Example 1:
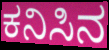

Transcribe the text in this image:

ಕನಿಸಿನ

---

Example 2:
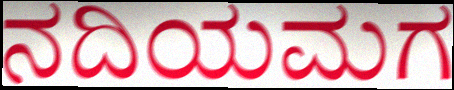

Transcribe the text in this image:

ನದಿಯಮಗ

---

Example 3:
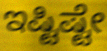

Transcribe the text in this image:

ಇಷ್ಟಿಷ್ಟೇ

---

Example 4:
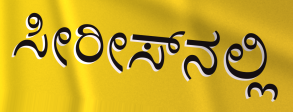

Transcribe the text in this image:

ಸೀರೀಸ್‌ನಲ್ಲಿ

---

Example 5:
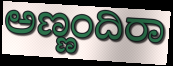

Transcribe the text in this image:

ಅಣ್ಣಂದಿರಾ